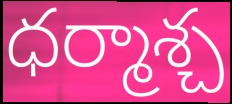
ధర్మాశ్చ